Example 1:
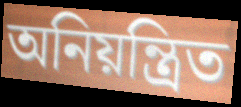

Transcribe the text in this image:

অনিয়ন্ত্ৰিত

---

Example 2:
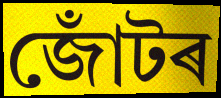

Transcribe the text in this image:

জোঁটৰ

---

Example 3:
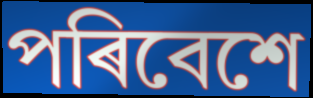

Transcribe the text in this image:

পৰিবেশে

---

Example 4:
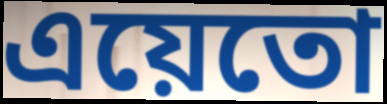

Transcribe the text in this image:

এয়েতো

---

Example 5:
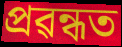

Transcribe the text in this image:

প্ৰৱন্ধত